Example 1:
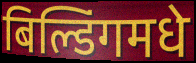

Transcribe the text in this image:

बिल्डिंगमधे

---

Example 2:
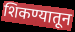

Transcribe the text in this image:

शिकण्यातून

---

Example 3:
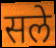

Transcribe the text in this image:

सले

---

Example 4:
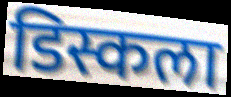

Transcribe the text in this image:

डिस्कला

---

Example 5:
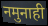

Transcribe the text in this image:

नमुनाही